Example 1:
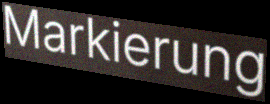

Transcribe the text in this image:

Markierung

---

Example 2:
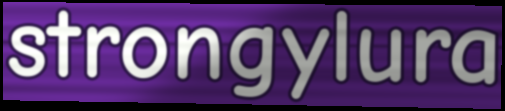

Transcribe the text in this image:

strongylura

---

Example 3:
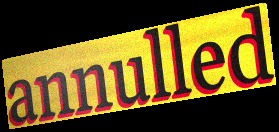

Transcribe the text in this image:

annulled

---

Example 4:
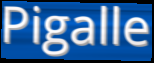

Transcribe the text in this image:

Pigalle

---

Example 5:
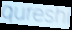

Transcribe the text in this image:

qureshi